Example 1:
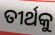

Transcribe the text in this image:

ତୀର୍ଥକୁ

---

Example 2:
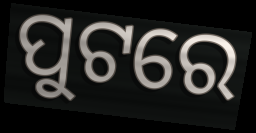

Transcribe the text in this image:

ପୁଟରେ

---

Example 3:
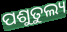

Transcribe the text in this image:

ପଶୁତୁଲ୍ୟ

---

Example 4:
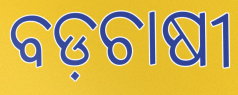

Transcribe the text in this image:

ବଡ଼ଚାଷୀ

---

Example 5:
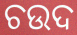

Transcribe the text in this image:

ଚଉଦ